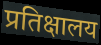
प्रतिक्षालय